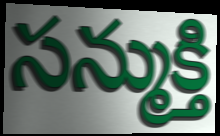
సన్ముక్తి